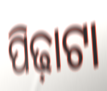
ପିଢ଼ାଟା